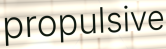
propulsive